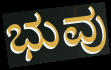
ಭುವು